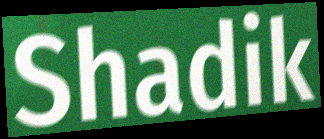
Shadik